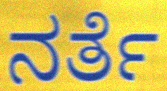
ನರ್ತೆ